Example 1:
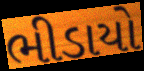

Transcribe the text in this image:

ભીડાયો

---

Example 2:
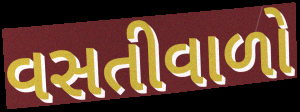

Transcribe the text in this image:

વસતીવાળો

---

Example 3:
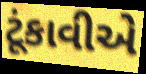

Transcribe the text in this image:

ટૂંકાવીએ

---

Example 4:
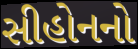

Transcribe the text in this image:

સીહોનનો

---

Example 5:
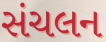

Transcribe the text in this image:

સંચલન